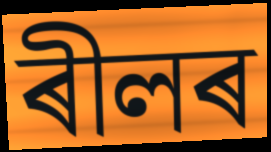
ৰীলৰ